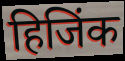
हिजिंक